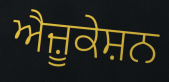
ਐਜ਼ੂਕੇਸ਼ਨ